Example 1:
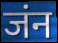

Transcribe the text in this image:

जंन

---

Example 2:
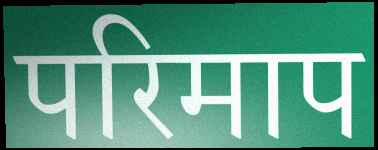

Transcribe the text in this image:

परिमाप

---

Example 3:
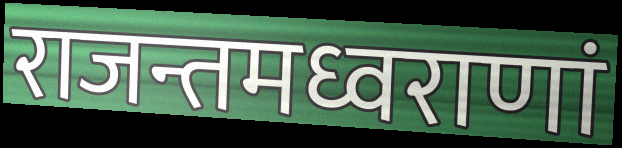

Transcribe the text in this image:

राजन्तमध्वराणां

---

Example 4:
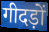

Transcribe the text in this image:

गीदड़ों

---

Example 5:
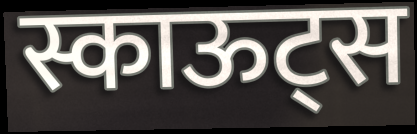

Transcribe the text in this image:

स्काऊट्स